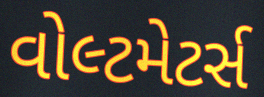
વોલ્ટમેટર્સ